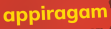
appiragam